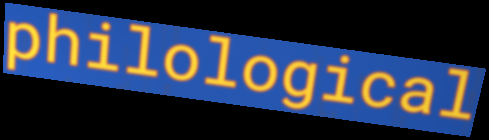
philological